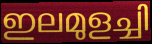
ഇലമുളച്ചി